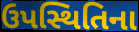
ઉપસ્થિતિના